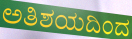
ಅತಿಶಯದಿಂದ